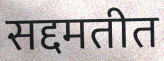
सद्दमतीत